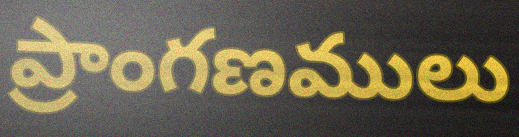
ప్రాంగణములు